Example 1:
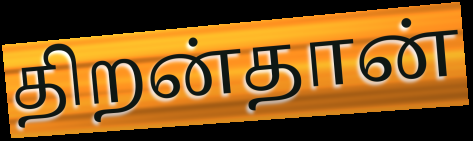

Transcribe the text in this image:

திறன்தான்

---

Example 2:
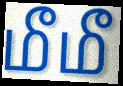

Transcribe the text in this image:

மீமீ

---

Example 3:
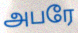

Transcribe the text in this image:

அபரே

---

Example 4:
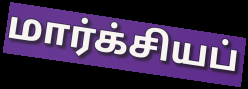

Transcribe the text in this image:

மார்க்சியப்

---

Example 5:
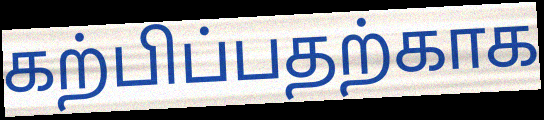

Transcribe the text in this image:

கற்பிப்பதற்காக